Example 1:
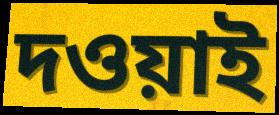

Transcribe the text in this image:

দওয়াই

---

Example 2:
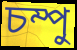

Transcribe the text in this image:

চম্পু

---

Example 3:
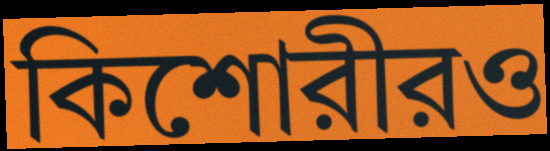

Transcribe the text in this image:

কিশোরীরও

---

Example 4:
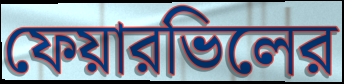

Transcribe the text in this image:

ফেয়ারভিলের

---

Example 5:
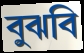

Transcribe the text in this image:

বুঝবি